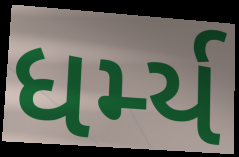
ધર્મ્ય